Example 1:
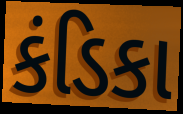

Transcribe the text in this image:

કંડિકા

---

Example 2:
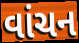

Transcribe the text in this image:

વાંચન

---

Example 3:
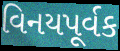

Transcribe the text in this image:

વિનયપૂર્વક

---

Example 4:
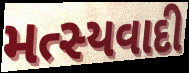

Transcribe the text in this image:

મત્સ્યવાદી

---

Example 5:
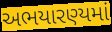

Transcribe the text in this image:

અભયારણ્યમાં